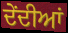
ਦੇਂਦੀਆਂ